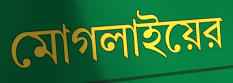
মোগলাইয়ের